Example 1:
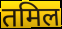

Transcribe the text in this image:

तमिल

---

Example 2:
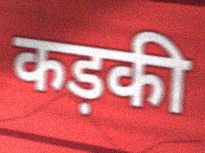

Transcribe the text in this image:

कड़की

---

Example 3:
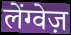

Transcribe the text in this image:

लेंग्वेज़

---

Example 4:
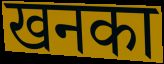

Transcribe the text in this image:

खनका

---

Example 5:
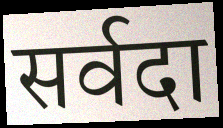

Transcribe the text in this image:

सर्वदा